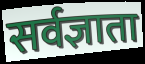
सर्वज्ञाता